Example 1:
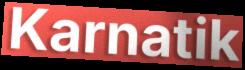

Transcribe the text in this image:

Karnatik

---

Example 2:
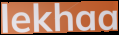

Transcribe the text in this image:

lekhaa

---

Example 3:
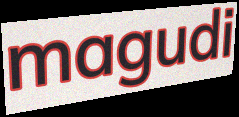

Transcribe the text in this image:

magudi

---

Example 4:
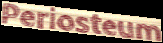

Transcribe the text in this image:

Periosteum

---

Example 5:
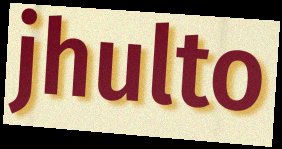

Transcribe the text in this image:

jhulto